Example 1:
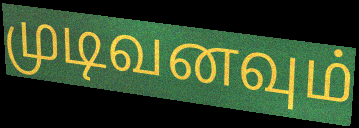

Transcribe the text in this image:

முடிவனவும்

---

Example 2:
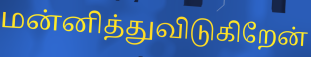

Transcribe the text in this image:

மன்னித்துவிடுகிறேன்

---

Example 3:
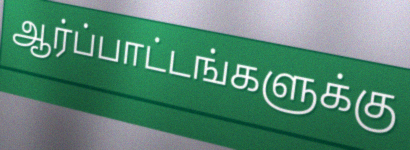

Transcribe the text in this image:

ஆர்ப்பாட்டங்களுக்கு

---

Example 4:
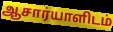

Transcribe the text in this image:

ஆசார்யாளிடம்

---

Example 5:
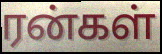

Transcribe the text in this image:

ரன்கள்